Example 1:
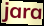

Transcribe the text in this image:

jara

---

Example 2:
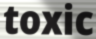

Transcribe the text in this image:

toxic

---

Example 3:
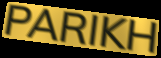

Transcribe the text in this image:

PARIKH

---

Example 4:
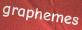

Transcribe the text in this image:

graphemes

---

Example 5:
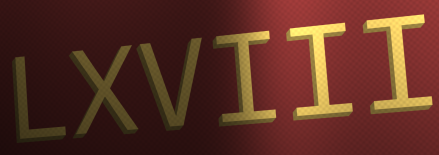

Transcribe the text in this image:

LXVIII